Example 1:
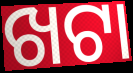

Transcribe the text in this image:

ଖଟା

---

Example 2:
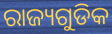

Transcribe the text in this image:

ରାଜ୍ୟଗୁଡିକ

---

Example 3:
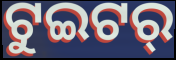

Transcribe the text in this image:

ଟୁଇଟର୍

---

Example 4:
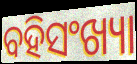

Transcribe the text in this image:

ବହିସଂଖ୍ୟା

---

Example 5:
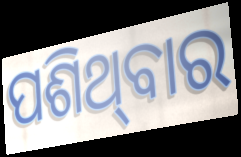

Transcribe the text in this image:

ପଶିଥ୍‌ବାର